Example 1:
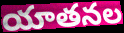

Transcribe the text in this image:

యాతనల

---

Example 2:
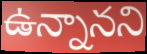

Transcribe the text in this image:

ఉన్నానని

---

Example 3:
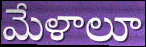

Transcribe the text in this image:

మేళాలూ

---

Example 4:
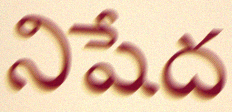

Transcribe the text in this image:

నిషేద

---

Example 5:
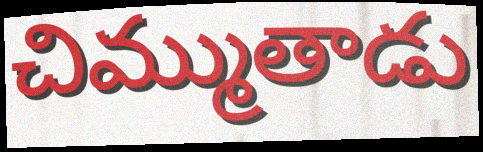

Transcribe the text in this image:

చిమ్ముతాడు